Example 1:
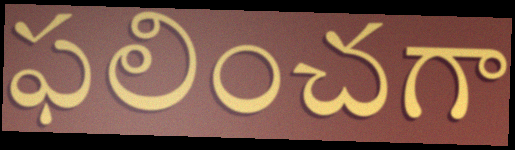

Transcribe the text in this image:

ఫలించగా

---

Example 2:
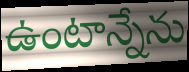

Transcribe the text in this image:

ఉంటాన్నేను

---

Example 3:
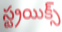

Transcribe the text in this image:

స్ట్రయిక్స్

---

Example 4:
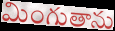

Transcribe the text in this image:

మింగుతాను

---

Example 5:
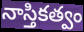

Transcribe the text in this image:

నాస్తికత్వం